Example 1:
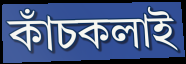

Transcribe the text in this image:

কাঁচকলাই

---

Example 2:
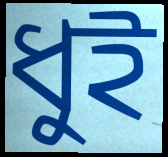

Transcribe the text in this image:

ধুই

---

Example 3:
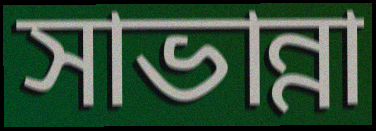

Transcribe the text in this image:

সাভান্না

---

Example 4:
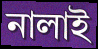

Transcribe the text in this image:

নালাই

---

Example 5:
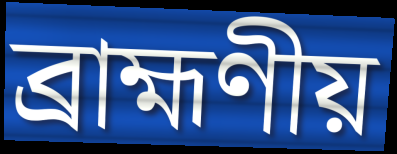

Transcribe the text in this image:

ব্রাহ্মণীয়